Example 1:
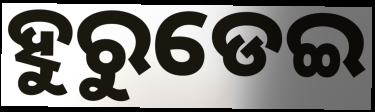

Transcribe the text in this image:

ହୁରୁଡେଇ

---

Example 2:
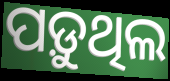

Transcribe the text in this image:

ପଡ଼ୁଥିଲ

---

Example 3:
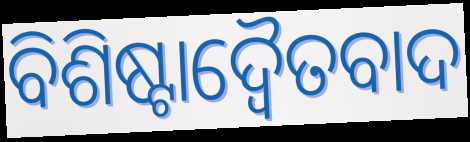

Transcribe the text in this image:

ବିଶିଷ୍ଟାଦ୍ଵୈତବାଦ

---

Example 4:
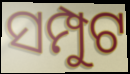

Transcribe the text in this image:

ସମ୍ପୁଟ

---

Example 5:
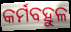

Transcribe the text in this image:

କର୍ମବହୁଳ